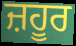
ਜ਼ਹੂਰ